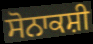
ਸੋਨਾਕਸ਼ੀ